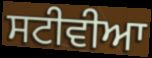
ਸਟੀਵੀਆ